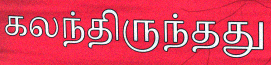
கலந்திருந்தது